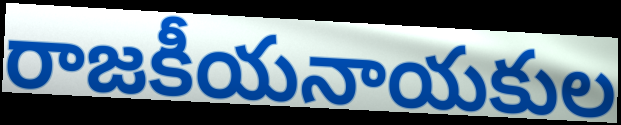
రాజకీయనాయకుల